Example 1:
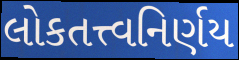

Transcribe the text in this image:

લોકતત્ત્વનિર્ણય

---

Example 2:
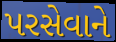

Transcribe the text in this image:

પરસેવાને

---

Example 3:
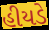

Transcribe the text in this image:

હીયડે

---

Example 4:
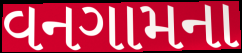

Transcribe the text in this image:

વનગામના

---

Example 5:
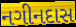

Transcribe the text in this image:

નગીનદાસ